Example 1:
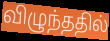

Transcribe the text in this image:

விழுந்ததில்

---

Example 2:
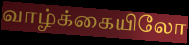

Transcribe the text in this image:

வாழ்க்கையிலோ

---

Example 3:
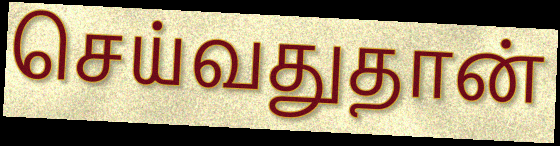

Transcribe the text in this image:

செய்வதுதான்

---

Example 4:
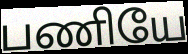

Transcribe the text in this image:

பணியே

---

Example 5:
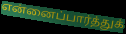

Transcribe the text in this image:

என்னைப்பார்த்துக்